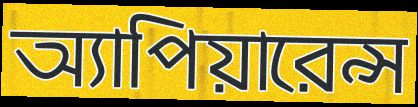
অ্যাপিয়ারেন্স